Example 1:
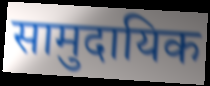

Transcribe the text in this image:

सामुदायिक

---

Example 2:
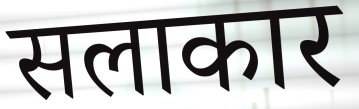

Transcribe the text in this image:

सलाकार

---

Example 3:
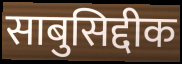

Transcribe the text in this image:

साबुसिद्दीक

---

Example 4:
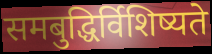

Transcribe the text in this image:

समबुद्धिर्विशिष्यते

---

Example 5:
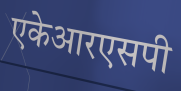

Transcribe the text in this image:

एकेआरएसपी